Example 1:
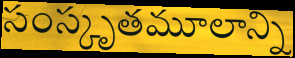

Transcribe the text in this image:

సంస్కృతమూలాన్ని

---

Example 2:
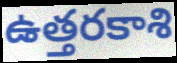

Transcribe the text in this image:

ఉత్తరకాశి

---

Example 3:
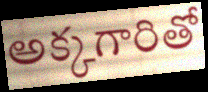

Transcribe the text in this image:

అక్కగారితో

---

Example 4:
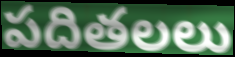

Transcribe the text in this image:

పదితలలు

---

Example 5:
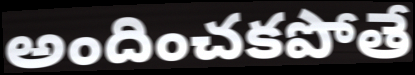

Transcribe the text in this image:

అందించకపోతే